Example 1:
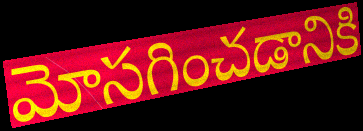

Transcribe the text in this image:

మోసగించడానికి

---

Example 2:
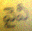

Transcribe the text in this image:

వైవీ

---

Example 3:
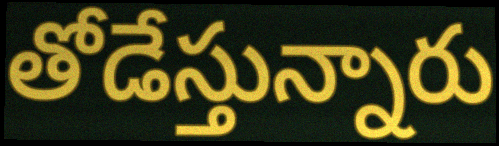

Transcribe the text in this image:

తోడేస్తున్నారు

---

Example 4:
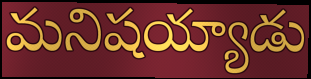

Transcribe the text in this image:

మనిషయ్యాడు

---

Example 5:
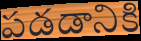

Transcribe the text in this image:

పడడానికి